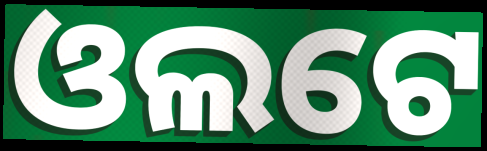
ଓଲଟେ